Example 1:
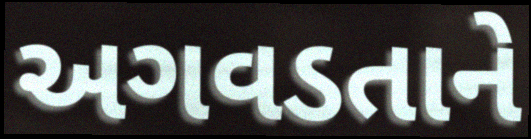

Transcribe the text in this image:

અગવડતાને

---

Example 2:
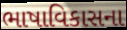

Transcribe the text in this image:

ભાષાવિકાસના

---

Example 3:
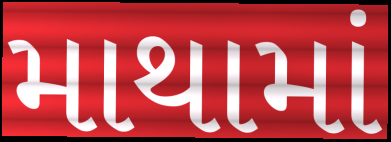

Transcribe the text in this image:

માથામાં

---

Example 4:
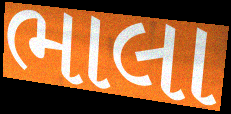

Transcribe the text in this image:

ભાલા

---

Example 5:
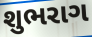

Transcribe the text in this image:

શુભરાગ